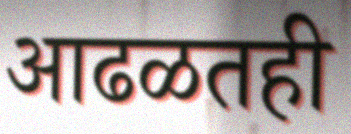
आढळतही